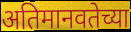
अतिमानवतेच्या